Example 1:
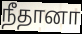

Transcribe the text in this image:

நீதானா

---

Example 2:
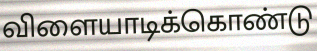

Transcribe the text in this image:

விளையாடிக்கொண்டு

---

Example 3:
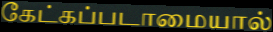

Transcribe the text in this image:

கேட்கப்படாமையால்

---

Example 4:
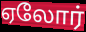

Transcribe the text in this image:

ஏலோர்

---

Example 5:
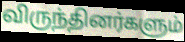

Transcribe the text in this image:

விருந்தினர்களும்